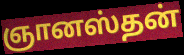
ஞானஸ்தன்